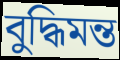
বুদ্ধিমন্ত